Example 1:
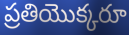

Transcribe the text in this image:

ప్రతియొక్కరూ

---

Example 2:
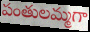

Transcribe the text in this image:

పంతులమ్మగా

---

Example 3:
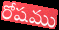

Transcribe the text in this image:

రోషము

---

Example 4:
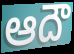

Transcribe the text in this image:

ఆదౌ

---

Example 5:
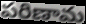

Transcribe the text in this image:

పరిణామ